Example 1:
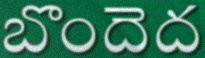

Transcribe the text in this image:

బొందెద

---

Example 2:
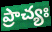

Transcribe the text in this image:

ప్రాచ్యః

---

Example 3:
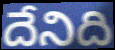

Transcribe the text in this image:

దేనిది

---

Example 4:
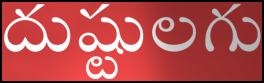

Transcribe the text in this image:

దుష్టులగు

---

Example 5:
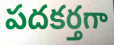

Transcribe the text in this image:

పదకర్తగా